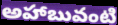
అహాబువంటి